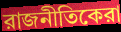
রাজনীতিকেরা